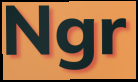
Ngr